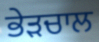
ਭੇੜਚਾਲ